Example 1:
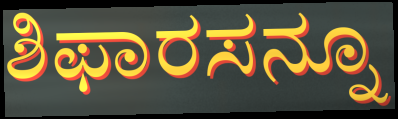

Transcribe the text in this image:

ಶಿಫಾರಸನ್ನೂ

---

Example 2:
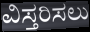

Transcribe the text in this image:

ವಿಸ್ತರಿಸಲು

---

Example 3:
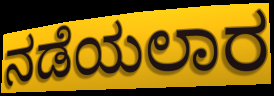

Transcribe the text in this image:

ನಡೆಯಲಾರ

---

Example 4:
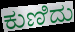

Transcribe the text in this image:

ಕುಣಿದು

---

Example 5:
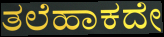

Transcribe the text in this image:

ತಲೆಹಾಕದೇ